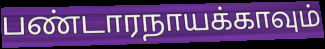
பண்டாரநாயக்காவும்